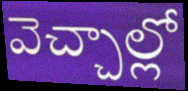
వెచ్చాల్లో